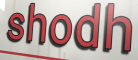
shodh